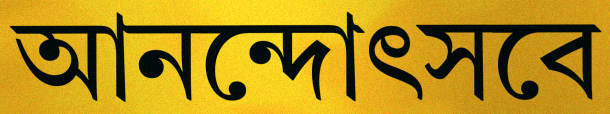
আনন্দোৎসবে